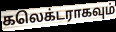
கலெக்டராகவும்